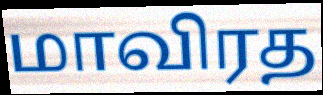
மாவிரத